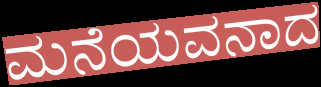
ಮನೆಯವನಾದ